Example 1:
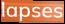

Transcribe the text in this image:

lapses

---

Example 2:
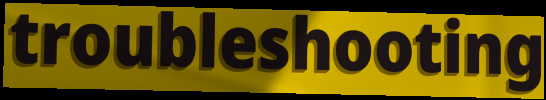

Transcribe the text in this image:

troubleshooting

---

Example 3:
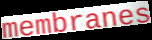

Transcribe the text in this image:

membranes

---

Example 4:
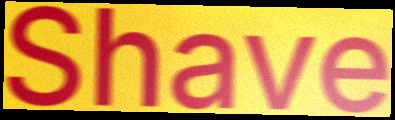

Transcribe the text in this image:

Shave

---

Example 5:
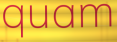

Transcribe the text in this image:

quam